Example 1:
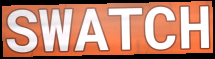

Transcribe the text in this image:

SWATCH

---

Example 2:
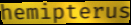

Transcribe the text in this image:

hemipterus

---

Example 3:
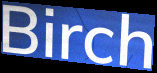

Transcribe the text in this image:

Birch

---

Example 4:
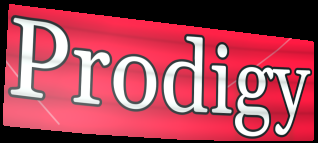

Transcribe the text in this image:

Prodigy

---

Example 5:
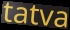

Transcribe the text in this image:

tatva